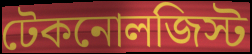
টেকনোলজিস্ট